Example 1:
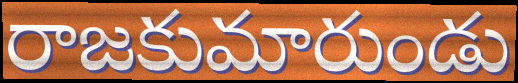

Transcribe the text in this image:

రాజకుమారుండు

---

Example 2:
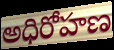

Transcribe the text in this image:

అధిరోహణ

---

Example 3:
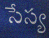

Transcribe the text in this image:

సేస్య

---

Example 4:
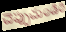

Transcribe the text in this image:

చెప్పుచుండిరి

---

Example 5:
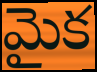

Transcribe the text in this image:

మైక